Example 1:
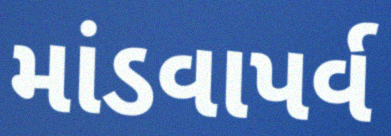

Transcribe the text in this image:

માંડવાપર્વ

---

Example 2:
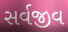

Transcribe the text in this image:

સર્વજીવ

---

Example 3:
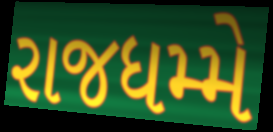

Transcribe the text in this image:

રાજધમ્મે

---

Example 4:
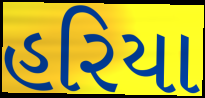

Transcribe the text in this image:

હરિયા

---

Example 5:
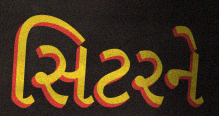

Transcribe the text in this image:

સિટરને